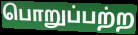
பொறுப்பற்ற